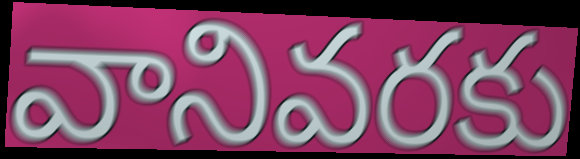
వానివరకు